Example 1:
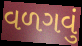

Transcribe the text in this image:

વળગવું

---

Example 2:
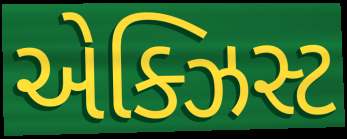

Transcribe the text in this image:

એક્ઝિસ્ટ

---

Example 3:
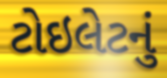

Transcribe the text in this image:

ટોઇલેટનું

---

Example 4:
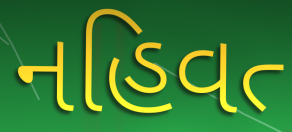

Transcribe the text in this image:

નહિવત્‍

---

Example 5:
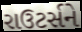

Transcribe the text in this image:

રાઉટર્સને